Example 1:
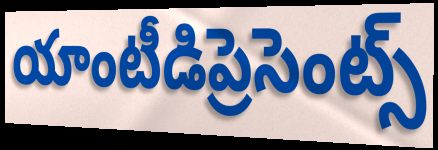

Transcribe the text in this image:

యాంటీడిప్రెసెంట్స్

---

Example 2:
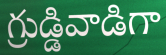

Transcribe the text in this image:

గ్రుడ్డివాడిగా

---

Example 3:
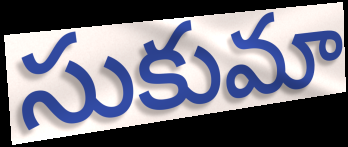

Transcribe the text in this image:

సుకుమా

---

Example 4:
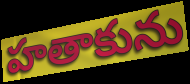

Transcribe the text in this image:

హతాకును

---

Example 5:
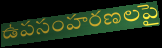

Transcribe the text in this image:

ఉపసంహరణలపై